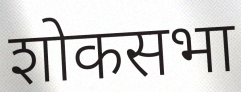
शोकसभा